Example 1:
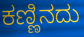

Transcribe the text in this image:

ಕಣ್ಣಿನದು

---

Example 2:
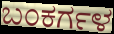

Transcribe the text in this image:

ಬಂಕರ್ಗಳ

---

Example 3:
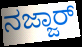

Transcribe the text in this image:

ನಜ್ಜಾರ್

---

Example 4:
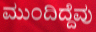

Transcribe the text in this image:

ಮುಂದಿದ್ದೆವು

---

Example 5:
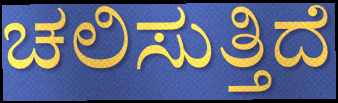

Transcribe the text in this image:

ಚಲಿಸುತ್ತಿದೆ